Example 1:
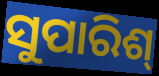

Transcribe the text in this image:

ସୁପାରିଶ୍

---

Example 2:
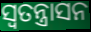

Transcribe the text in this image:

ସ୍ଵତନ୍ତ୍ରାସନ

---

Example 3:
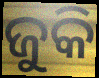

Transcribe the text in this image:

ଜୁକି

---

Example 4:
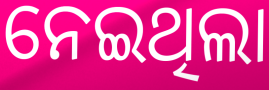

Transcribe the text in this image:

ନେଇଥିଲା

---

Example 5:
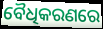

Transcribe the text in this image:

ବୈଧିକରଣରେ